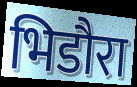
भिडौरा